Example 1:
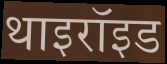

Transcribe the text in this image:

थाइरॉइड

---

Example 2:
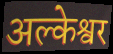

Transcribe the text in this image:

अल्केश्वर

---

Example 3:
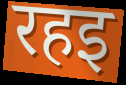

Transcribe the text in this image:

रहइ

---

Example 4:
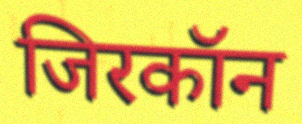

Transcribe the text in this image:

जिरकॉन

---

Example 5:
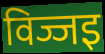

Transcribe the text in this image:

विज्जइ